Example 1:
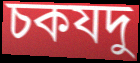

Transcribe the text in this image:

চকযদু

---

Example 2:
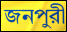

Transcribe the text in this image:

জনপুরী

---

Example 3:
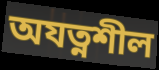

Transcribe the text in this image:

অযত্নশীল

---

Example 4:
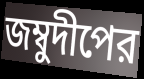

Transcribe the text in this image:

জম্বুদীপের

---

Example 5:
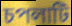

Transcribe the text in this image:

চপলাটি